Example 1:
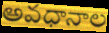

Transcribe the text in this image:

అవధానాల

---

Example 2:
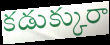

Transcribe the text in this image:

కడుక్కురా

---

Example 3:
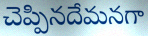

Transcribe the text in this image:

చెప్పినదేమనగా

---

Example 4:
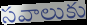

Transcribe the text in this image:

సవాలుకు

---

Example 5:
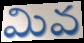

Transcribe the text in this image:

మివ